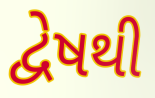
દ્વેષથી